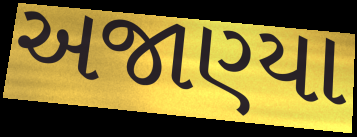
અજાણ્યા